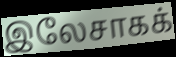
இலேசாகக்